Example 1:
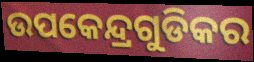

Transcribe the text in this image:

ଉପକେନ୍ଦ୍ରଗୁଡିକର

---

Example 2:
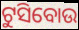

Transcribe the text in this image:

ଟୁସିବୋଉ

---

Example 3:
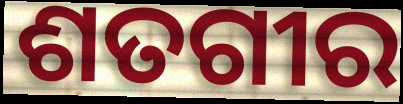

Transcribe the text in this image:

ଶତଗୀର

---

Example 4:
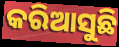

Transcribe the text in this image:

କରିଆସୁଛି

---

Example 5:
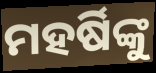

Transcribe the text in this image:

ମହର୍ଷିଙ୍କୁ